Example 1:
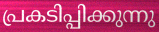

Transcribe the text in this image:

പ്രകടിപ്പിക്കുന്നു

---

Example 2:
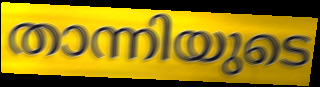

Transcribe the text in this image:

താന്നിയുടെ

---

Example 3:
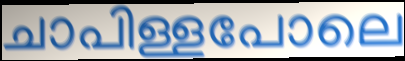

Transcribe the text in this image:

ചാപിള്ളപോലെ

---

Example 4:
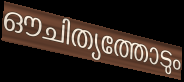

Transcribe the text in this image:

ഔചിത്യത്തോടും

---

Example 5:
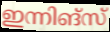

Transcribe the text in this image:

ഇന്നിങ്സ്